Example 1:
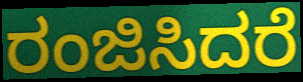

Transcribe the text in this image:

ರಂಜಿಸಿದರೆ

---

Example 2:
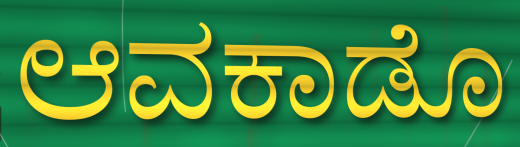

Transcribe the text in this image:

ಆವಕಾಡೊ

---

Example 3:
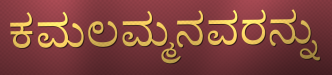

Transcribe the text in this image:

ಕಮಲಮ್ಮನವರನ್ನು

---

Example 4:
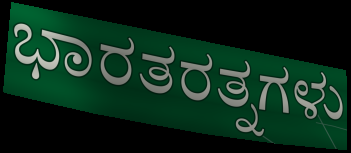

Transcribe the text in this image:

ಭಾರತರತ್ನಗಳು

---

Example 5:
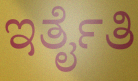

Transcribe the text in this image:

ಇರ್ತೈತಿ